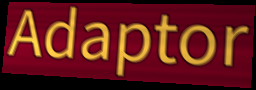
Adaptor